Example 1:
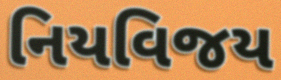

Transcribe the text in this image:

નિયવિજય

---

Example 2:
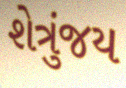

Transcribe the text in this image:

શેત્રુંજય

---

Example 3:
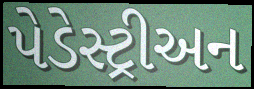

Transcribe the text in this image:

પેડેસ્ટ્રીઅન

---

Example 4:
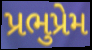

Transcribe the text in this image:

પ્રભુપ્રેમ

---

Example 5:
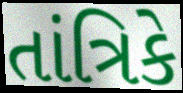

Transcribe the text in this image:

તાંત્રિકે